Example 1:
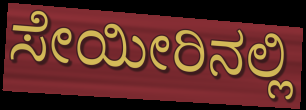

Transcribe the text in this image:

ಸೇಯೀರಿನಲ್ಲಿ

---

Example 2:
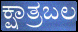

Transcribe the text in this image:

ಕ್ಷಾತ್ರಬಲ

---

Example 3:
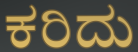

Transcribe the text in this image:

ಕರಿದು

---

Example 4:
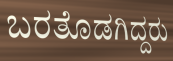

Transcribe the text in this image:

ಬರತೊಡಗಿದ್ದರು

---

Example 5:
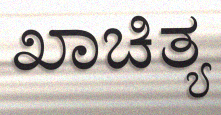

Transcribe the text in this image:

ಖಾಚಿತ್ಯ